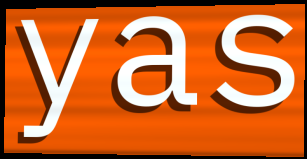
yas